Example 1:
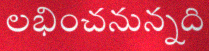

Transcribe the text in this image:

లభించనున్నది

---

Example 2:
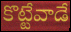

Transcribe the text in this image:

కొట్టేవాడే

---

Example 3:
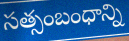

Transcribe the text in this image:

సత్సంబంధాన్ని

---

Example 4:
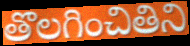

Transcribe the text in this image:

తొలగించితిని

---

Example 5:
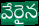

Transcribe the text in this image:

వేరైన